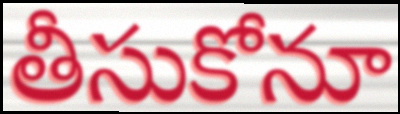
తీసుకోనూ